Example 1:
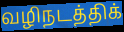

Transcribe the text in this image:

வழிநடத்திக்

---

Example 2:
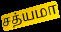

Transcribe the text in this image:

சத்யமா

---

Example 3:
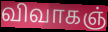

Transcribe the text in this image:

விவாகஞ்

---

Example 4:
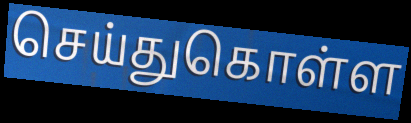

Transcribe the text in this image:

செய்துகொள்ள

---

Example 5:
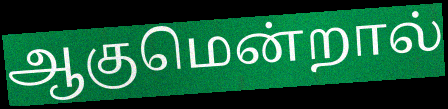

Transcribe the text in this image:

ஆகுமென்றால்